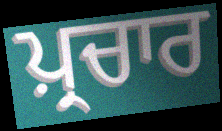
ਪ਼੍ਰਚਾਰ